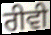
ਰੀਵੀ